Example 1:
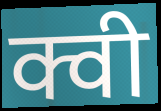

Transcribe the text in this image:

क्वी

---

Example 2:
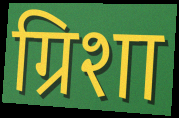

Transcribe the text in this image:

ग्रिशा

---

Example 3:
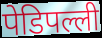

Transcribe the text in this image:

पेडिपल्ली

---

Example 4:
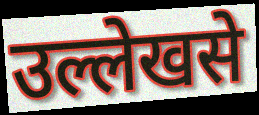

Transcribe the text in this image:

उल्लेखसे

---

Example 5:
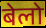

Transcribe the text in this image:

बेलो